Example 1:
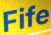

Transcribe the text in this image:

Fife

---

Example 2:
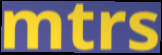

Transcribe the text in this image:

mtrs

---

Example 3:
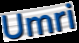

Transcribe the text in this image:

Umri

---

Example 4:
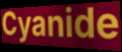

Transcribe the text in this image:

Cyanide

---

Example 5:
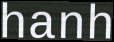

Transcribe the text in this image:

hanh